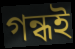
গন্ধই